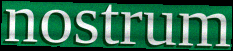
nostrum